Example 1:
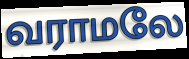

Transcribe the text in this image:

வராமலே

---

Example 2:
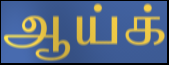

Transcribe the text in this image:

ஆய்க்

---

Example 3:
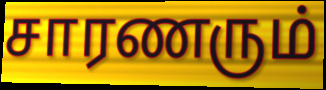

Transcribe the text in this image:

சாரணரும்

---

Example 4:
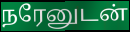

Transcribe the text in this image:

நரேனுடன்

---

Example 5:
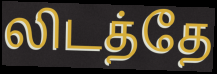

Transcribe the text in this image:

லிடத்தே